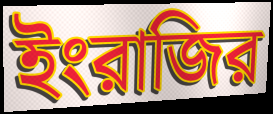
ইংরাজির